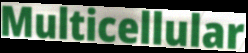
Multicellular